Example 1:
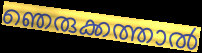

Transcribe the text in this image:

ഞെരുക്കത്താൽ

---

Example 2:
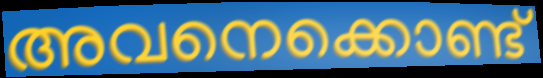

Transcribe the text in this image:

അവനെക്കൊണ്ട്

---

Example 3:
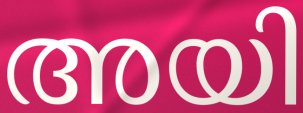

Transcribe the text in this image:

അയി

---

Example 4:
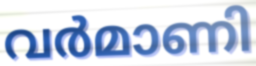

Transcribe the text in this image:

വർമാണി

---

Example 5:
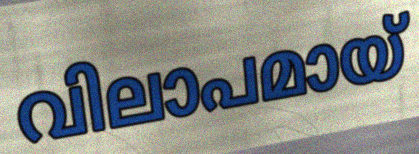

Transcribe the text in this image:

വിലാപമായ്